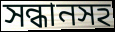
সন্ধানসহ